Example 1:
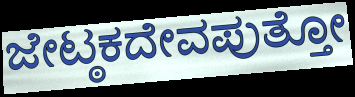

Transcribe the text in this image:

ಜೇಟ್ಠಕದೇವಪುತ್ತೋ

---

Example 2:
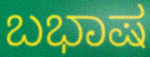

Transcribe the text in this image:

ಬಭಾಷ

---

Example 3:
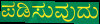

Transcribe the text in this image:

ಪಡಿಸುವುದು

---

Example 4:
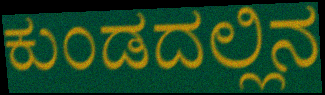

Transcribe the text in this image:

ಕುಂಡದಲ್ಲಿನ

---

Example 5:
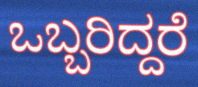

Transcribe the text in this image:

ಒಬ್ಬರಿದ್ದರೆ